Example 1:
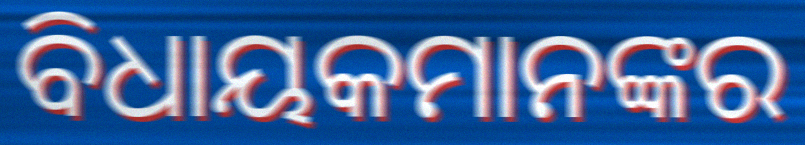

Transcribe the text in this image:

ବିଧାୟକମାନଙ୍କର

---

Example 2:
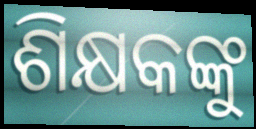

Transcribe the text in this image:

ଶିକ୍ଷକଙ୍କୁ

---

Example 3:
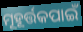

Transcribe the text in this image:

ମୂହୂର୍ତ୍ତକପାଇଁ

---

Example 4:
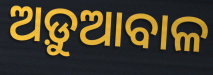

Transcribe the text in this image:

ଅଡ଼ୁଆବାଳ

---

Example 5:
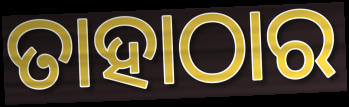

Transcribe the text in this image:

ତାହାଠାର